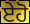
ਏਹੋ